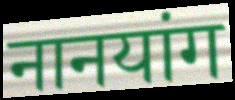
नानयांग